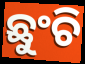
ଛୁଂଚି